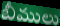
బీములు